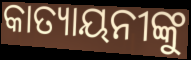
କାତ୍ୟାୟନୀଙ୍କୁ